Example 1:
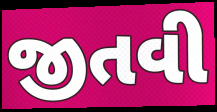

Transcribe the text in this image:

જીતવી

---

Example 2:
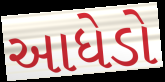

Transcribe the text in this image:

આધેડો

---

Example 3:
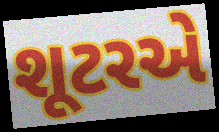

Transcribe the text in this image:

શૂટરએ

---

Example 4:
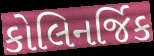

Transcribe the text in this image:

કોલિનર્જિક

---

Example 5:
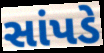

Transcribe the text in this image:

સાંપડે